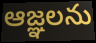
ఆజ్ఞలను